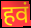
हवं